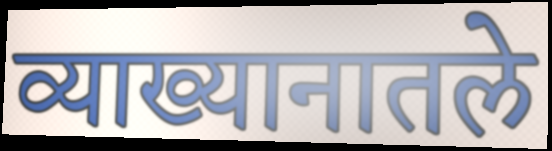
व्याख्यानातले